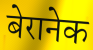
बेरानेक